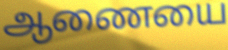
ஆணையை